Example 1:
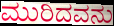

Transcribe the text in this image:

ಮುರಿದವನು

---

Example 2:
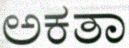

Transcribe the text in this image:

ಅಕತಾ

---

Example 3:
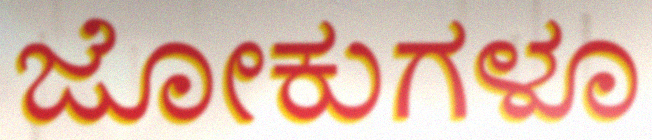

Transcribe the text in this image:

ಜೋಕುಗಳೂ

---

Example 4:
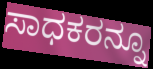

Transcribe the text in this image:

ಸಾಧಕರನ್ನೂ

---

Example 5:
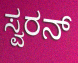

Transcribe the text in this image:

ಸ್ವರನ್